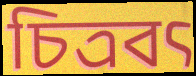
চিত্রবৎ